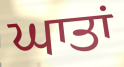
ਘਾਤਾਂ